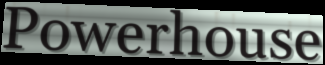
Powerhouse